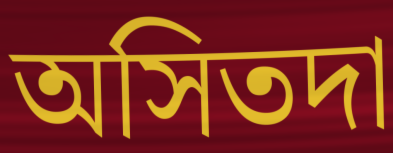
অসিতদা